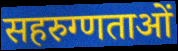
सहरुग्णताओं